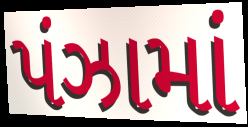
પંઝામાં